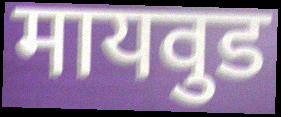
मायवुड